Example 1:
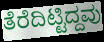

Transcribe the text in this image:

ತೆರೆದಿಟ್ಟಿದ್ದವು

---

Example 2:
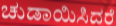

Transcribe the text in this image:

ಚುಡಾಯಿಸಿದರೆ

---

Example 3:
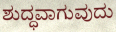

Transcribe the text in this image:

ಶುದ್ಧವಾಗುವುದು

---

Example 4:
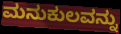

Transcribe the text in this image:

ಮನುಕುಲವನ್ನು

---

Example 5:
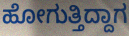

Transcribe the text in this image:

ಹೋಗುತ್ತಿದ್ದಾಗ